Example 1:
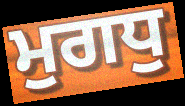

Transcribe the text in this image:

ਮੁਗਧੁ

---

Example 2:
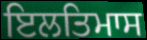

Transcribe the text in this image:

ਇਲਤਿਮਾਸ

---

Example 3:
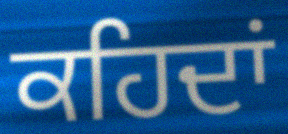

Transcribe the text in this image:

ਕਹਿਦਾਂ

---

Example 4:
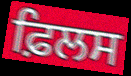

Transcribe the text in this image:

ਫ਼ਿਲਸ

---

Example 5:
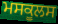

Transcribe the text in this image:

ਮਸਕੂਲਸ